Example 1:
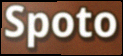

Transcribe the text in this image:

Spoto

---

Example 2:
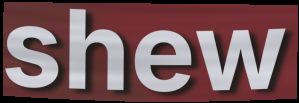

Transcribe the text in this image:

shew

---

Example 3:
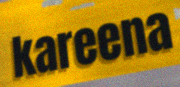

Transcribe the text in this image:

kareena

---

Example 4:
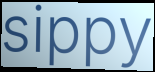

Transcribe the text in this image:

sippy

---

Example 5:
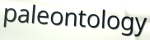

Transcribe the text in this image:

paleontology